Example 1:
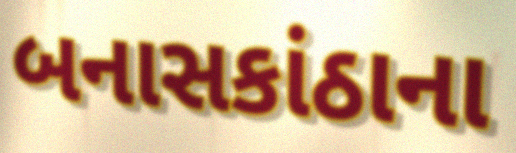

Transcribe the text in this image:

બનાસકાંઠાના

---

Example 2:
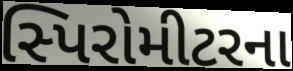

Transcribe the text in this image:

સ્પિરોમીટરના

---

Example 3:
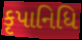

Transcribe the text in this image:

કૃપાનિધિ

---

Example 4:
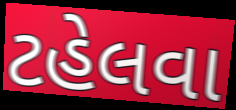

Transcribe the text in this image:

ટહેલવા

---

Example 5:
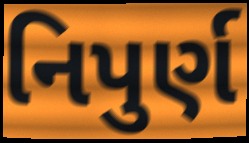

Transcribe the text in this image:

નિપુર્ણ